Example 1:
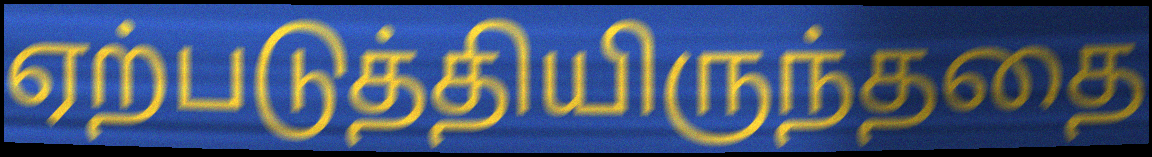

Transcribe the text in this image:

ஏற்படுத்தியிருந்ததை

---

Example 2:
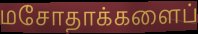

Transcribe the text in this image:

மசோதாக்களைப்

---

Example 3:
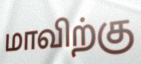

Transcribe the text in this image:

மாவிற்கு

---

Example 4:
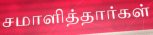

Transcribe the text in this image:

சமாளித்தார்கள்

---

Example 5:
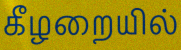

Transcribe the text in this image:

கீழறையில்